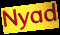
Nyad